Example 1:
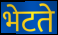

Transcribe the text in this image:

भेटते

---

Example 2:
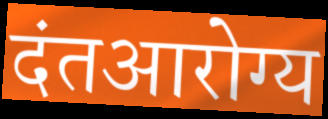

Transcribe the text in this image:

दंतआरोग्य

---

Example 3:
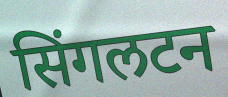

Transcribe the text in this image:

सिंगलटन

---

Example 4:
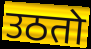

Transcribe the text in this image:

उठतो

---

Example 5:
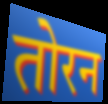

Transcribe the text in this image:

तोरन